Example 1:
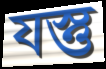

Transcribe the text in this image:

যস্তু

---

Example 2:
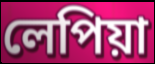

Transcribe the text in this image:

লেপিয়া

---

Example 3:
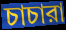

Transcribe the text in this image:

চাচারা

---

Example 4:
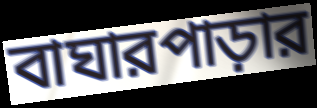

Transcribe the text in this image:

বাঘারপাড়ার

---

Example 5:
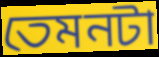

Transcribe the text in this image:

তেমনটা